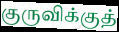
குருவிக்குத்